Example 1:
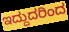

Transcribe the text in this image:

ಇದ್ದುದರಿಂದ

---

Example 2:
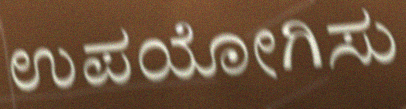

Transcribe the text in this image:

ಉಪಯೋಗಿಸು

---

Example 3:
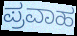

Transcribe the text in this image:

ಪ್ರವಾಹ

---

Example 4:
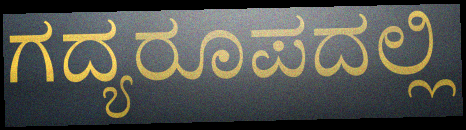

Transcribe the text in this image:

ಗದ್ಯರೂಪದಲ್ಲಿ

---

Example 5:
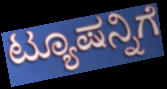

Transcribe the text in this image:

ಟ್ಯೂಷನ್ನಿಗೆ